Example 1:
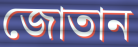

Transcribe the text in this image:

জোতান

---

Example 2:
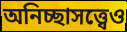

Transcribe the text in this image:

অনিচ্ছাসত্ত্বেও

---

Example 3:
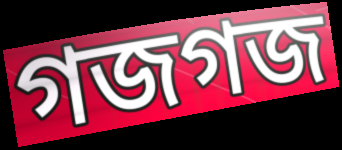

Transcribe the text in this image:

গজগজ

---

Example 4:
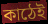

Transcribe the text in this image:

কাঠেই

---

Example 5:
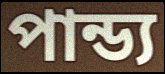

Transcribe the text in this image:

পান্ড্য